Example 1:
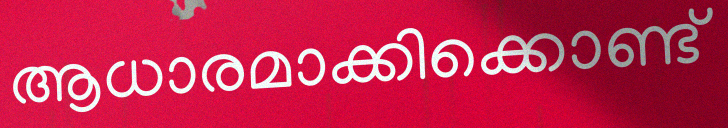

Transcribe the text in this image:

ആധാരമാക്കിക്കൊണ്ട്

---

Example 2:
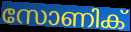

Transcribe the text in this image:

സോണിക്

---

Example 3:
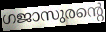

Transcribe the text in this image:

ഗജാസുരന്റെ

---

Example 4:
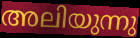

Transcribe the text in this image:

അലിയുന്നു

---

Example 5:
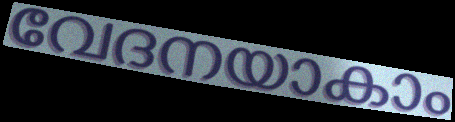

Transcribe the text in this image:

വേദനയാകാം